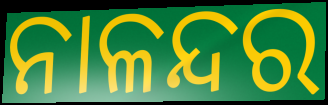
ନାଳନ୍ଦର